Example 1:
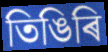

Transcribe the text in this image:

তিঙিৰি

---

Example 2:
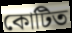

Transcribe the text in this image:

কোটিত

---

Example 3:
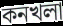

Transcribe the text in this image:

কনখলা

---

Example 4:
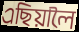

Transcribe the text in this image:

এছিয়ালৈ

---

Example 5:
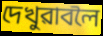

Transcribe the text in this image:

দেখুৱাবলৈ